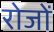
रोजों